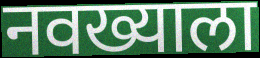
नवख्याला